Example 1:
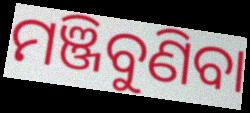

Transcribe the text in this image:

ମଞ୍ଜିବୁଣିବା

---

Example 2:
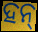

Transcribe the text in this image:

ହନ୍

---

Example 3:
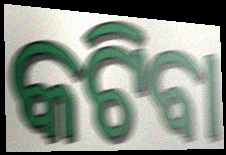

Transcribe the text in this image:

କଟିବା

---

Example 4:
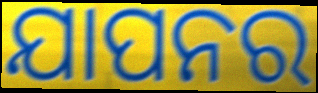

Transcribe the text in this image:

ଯାପନର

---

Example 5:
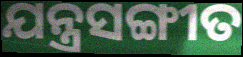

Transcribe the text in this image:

ଯନ୍ତ୍ରସଙ୍ଗୀତ